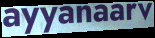
ayyanaarv